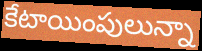
కేటాయింపులున్నా